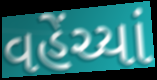
વહેંચ્યાં